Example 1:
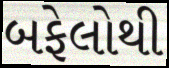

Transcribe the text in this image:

બફેલોથી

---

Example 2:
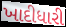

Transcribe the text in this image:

ખાદીધારી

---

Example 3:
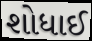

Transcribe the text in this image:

શોધાઈ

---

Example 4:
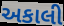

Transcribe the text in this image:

અકાલી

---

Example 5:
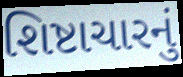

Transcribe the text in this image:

શિષ્ટાચારનું